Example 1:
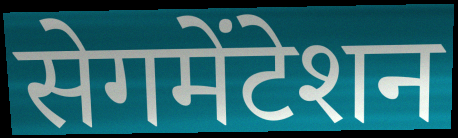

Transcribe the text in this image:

सेगमेंटेशन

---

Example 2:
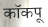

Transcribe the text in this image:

कॉकपू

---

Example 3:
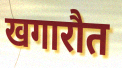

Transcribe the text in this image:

खगारौत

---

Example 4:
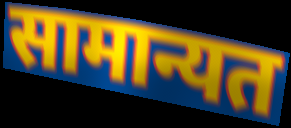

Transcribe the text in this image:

सामान्यत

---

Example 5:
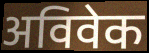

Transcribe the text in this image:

अविवेक